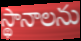
స్థానాలను